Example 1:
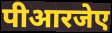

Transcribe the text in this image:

पीआरजेए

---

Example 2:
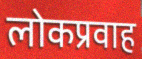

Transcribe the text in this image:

लोकप्रवाह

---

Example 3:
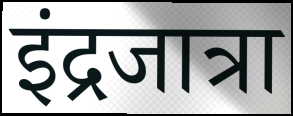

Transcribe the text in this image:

इंद्रजात्रा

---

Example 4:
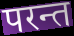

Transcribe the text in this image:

परन्त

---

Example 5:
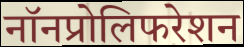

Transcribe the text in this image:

नॉनप्रोलिफरेशन